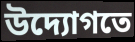
উদ্যোগতে